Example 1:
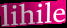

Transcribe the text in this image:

lihile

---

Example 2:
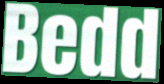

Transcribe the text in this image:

Bedd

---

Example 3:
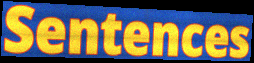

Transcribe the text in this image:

Sentences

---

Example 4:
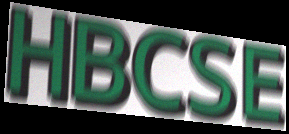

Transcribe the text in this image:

HBCSE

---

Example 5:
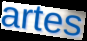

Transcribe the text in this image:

artes